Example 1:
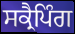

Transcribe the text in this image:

ਸਕ੍ਰੈਪਿੰਗ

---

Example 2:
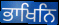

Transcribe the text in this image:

ਭਾਖਿਨਿ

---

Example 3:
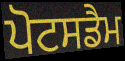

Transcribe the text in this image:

ਪੋਟਸਡੈਮ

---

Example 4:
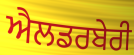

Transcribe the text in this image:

ਐਲਡਰਬੇਰੀ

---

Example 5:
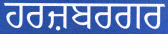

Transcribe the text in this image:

ਹਰਜ਼ਬਰਗਰ